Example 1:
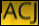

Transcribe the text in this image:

ACJ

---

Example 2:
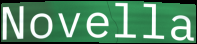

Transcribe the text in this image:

Novella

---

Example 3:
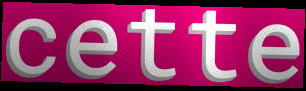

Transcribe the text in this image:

cette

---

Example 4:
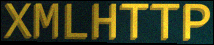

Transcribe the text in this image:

XMLHTTP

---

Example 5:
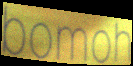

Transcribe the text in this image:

bomoh